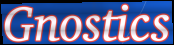
Gnostics